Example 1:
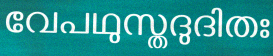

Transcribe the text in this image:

വേപഥുസ്തദുദിതഃ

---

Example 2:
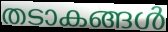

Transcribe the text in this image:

തടാകങ്ങൾ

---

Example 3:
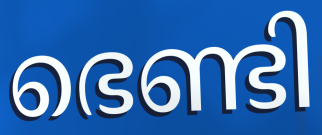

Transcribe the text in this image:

ഭെണ്ടി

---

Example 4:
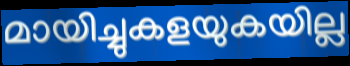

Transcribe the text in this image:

മായിച്ചുകളയുകയില്ല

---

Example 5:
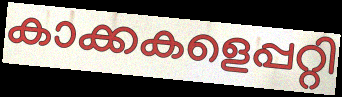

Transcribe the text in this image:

കാക്കകളെപ്പറ്റി